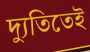
দ্যুতিতেই